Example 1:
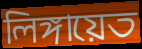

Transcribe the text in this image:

লিঙ্গায়েত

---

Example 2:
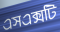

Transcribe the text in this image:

এসএক্সটি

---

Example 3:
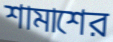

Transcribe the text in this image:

শামাশের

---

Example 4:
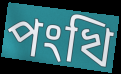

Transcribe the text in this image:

পংখি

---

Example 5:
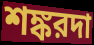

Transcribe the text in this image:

শঙ্করদা